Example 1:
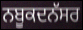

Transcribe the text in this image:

ਨਬੂਕਦਨੱਸਰ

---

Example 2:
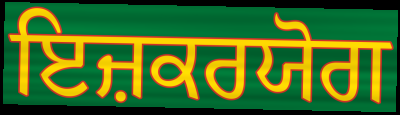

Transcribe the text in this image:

ਇਜ਼ਕਰਯੋਗ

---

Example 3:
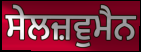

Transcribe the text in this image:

ਸੇਲਜ਼ਵੁਮੈਨ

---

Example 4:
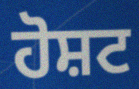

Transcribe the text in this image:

ਹੋਸ਼ਟ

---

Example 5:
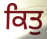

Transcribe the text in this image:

ਕਿਤੁ